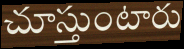
చూస్తుంటారు